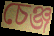
চেঞ্জ